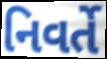
નિવર્તે